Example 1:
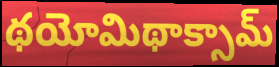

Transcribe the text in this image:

థయోమిథాక్సామ్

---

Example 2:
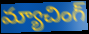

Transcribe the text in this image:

మ్యాచింగ్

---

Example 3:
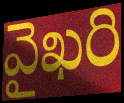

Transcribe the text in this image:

వైఖరి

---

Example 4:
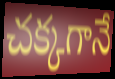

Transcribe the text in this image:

చక్కగానే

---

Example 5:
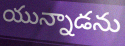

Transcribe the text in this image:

యున్నాడను